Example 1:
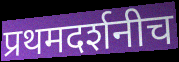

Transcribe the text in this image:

प्रथमदर्शनीच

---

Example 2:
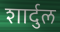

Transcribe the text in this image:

शार्दुल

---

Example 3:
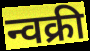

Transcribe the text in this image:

न्वक्री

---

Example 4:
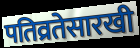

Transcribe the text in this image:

पतिव्रतेसारखी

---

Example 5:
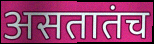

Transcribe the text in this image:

असतातंच